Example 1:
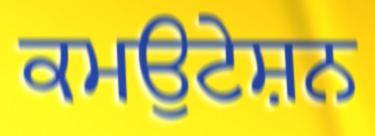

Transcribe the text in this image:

ਕਮਉਟੇਸ਼ਨ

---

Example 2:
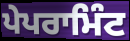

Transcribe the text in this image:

ਪੇਪਰਾਮਿੰਟ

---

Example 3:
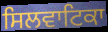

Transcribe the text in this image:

ਸਿਲਵਾਟਿਕਾ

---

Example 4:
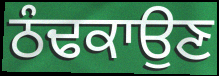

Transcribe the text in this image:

ਠੰਢਕਾਉਣ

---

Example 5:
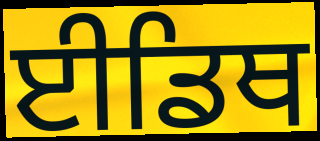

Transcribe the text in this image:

ਈਡਿਥ